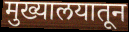
मुख्यालयातून